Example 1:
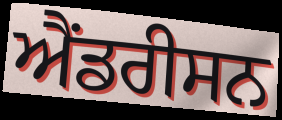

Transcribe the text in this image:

ਐਂਡਰੀਸਨ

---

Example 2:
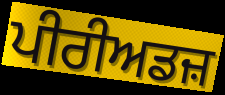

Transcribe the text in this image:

ਪੀਰੀਅਡਜ਼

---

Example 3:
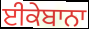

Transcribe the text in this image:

ਈਕੇਬਾਨਾ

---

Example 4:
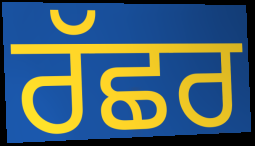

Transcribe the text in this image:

ਰੱਛਰ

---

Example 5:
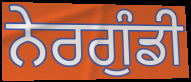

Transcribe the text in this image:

ਨੇਰਗੁੰਡੀ